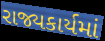
રાજ્યકાર્યમાં